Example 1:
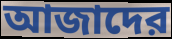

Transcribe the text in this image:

আজাদের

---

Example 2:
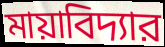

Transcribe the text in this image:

মায়াবিদ্যার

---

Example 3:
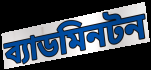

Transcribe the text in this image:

ব্যাডমিনটন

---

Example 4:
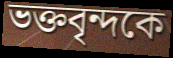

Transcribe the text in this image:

ভক্তবৃন্দকে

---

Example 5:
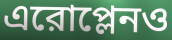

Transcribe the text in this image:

এরোপ্লেনও